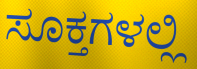
ಸೂಕ್ತಗಳಲ್ಲಿ